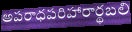
అపరాధపరిహారార్థబలి